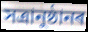
সত্ৰানুষ্ঠানৰ